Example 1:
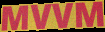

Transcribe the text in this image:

MVVM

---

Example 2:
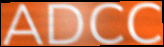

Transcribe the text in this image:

ADCC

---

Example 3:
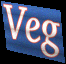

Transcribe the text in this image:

Veg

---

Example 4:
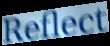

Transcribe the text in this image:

Reflect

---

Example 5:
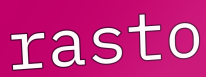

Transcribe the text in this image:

rasto